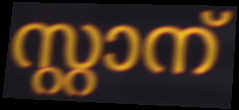
സ്റ്റാന്